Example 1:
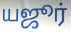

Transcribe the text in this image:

யஜூர்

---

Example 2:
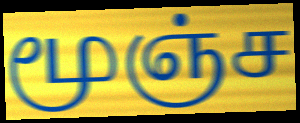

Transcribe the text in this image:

மூஞ்ச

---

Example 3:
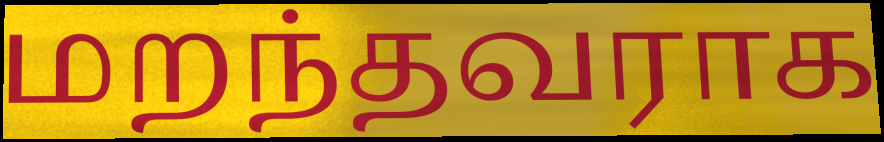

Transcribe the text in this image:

மறந்தவராக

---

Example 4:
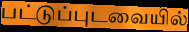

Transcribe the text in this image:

பட்டுப்புடவையில்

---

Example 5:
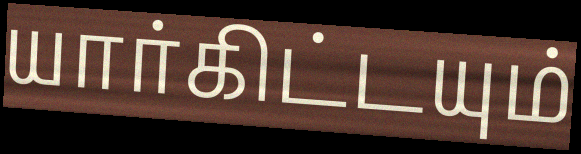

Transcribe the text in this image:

யார்கிட்டயும்